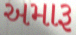
અમારૂ